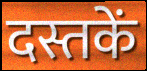
दस्तकें